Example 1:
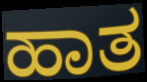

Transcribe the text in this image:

ಹಾತ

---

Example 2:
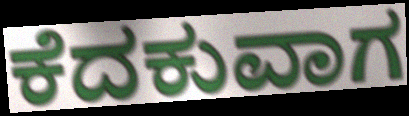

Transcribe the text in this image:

ಕೆದಕುವಾಗ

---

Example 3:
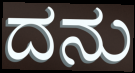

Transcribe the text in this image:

ದನು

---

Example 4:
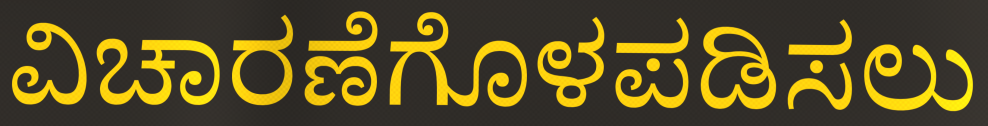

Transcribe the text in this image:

ವಿಚಾರಣೆಗೊಳಪಡಿಸಲು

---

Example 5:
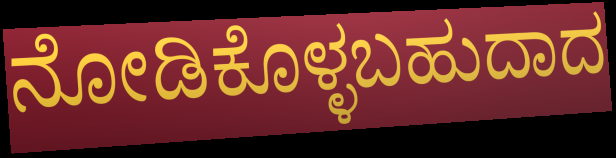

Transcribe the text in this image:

ನೋಡಿಕೊಳ್ಳಬಹುದಾದ